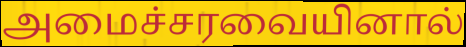
அமைச்சரவையினால்